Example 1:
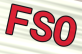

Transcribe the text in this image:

FSO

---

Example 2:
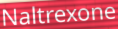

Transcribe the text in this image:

Naltrexone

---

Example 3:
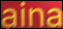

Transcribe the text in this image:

aina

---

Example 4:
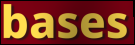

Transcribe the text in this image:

bases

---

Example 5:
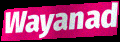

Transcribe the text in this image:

Wayanad